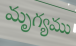
మృగ్యము